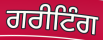
ਗਰੀਟਿੰਗ